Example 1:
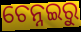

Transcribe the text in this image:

ଚେନ୍ନଇରୁ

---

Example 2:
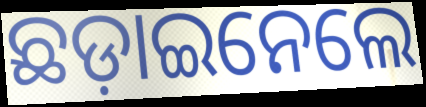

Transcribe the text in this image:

ଛଡ଼ାଇନେଲେ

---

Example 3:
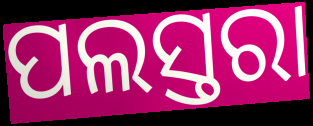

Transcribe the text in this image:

ପଲସ୍ତରା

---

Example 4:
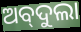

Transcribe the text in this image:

ଅବ୍‌ଦୁଲା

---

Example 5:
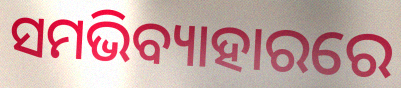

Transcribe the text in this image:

ସମଭିବ୍ୟାହାରରେ